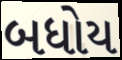
બધોય